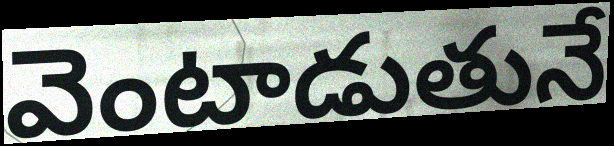
వెంటాడుతునే